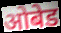
ओबेड